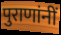
पुराणांनीं